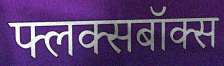
फ्लक्सबॉक्स